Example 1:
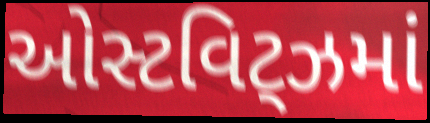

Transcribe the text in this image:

ઓસ્ટવિટ્ઝમાં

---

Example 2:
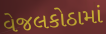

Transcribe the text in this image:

વેજલકોઠામાં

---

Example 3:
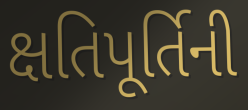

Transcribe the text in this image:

ક્ષતિપૂર્તિની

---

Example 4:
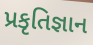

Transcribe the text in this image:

પ્રકૃતિજ્ઞાન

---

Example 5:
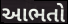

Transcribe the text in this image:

આભતો